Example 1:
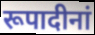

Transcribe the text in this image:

रूपादीनां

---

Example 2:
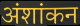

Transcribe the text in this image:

अंशांकन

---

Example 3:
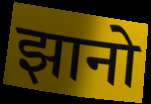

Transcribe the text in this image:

झानो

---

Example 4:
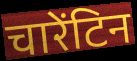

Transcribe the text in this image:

चारेंटिन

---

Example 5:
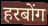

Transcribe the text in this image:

हरबोंग